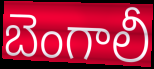
బెంగాలీ